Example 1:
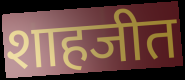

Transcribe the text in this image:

शाहजीत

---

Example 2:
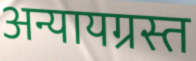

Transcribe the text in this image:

अन्यायग्रस्त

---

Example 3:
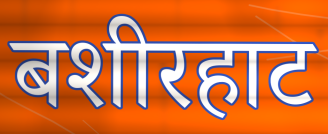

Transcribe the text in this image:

बशीरहाट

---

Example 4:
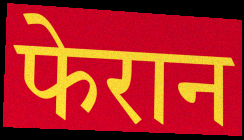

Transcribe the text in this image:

फेरान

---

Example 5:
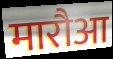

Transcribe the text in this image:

मारौआ